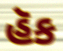
હૅક